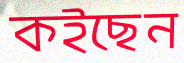
কইছেন